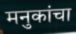
मनुकांचा